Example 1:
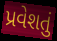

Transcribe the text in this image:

પ્રવેશતું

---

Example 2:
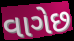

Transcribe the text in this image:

વાગેછ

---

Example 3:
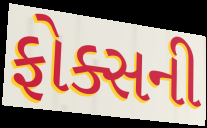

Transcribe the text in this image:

ફોક્સની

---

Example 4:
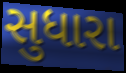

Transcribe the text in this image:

સુધારા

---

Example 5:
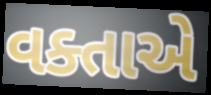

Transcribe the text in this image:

વક્તાએ